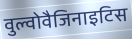
वुल्वोवैजिनाइटिस